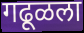
गढूळला